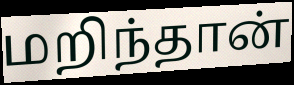
மறிந்தான்